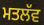
ਮਤਲੱਵ